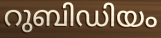
റുബിഡിയം